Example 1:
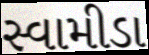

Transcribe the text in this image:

સ્વામીડા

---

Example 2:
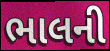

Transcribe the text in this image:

ભાલની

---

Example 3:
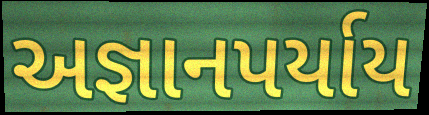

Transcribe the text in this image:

અજ્ઞાનપર્યાય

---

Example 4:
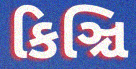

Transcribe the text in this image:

કિઞ્ચિ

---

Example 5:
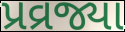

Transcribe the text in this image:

પ્રવ્રજ્યા